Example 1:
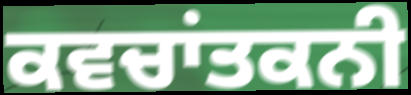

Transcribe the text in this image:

ਕਵਚਾਂਤਕਨੀ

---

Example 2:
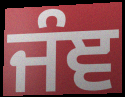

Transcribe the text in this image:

ਜੰਞ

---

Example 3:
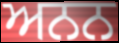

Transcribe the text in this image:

ਅਨਨ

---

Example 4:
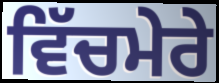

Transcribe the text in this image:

ਵਿੱਚਮੇਰੇ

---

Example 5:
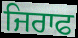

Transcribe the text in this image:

ਜਿਰਾਫ